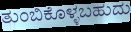
ತುಂಬಿಕೊಳ್ಳಬಹುದು